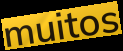
muitos